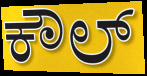
ಕೌಲ್